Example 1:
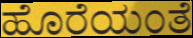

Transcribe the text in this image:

ಹೊರೆಯಂತೆ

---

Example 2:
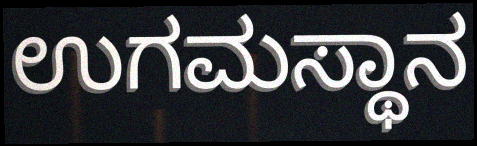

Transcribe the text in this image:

ಉಗಮಸ್ಥಾನ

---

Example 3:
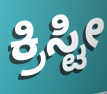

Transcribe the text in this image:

ಕ್ರಿಸ್ಟೀ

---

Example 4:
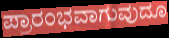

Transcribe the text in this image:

ಪ್ರಾರಂಭವಾಗುವುದೂ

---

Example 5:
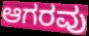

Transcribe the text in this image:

ಆಗರವು